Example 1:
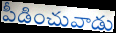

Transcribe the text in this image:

పీడించువాడు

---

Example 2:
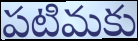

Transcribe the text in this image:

పటిమకు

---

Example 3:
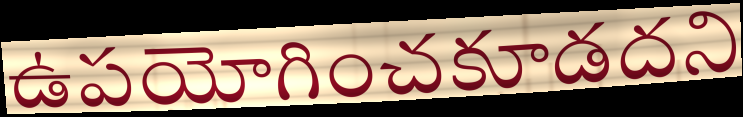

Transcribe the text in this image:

ఉపయోగించకూడదని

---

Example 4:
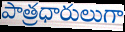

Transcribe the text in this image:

పాత్రధారులుగా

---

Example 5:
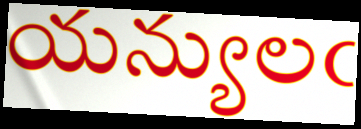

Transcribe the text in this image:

యన్యులఁ